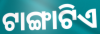
ଟାଙ୍ଗାଟିଏ